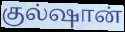
குல்ஷான்